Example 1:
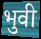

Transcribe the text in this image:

भुवी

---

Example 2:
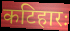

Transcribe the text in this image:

कटिहारः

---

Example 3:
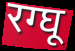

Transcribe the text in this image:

रग्घू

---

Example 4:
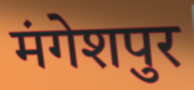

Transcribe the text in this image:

मंगेशपुर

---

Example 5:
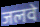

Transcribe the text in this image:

जलवे